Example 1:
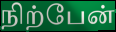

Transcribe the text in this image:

நிற்பேன்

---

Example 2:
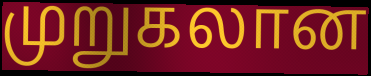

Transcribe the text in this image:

முறுகலான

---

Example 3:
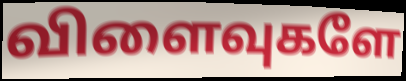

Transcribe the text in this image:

விளைவுகளே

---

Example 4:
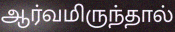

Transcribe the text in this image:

ஆர்வமிருந்தால்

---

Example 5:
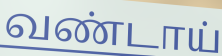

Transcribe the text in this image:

வண்டாய்